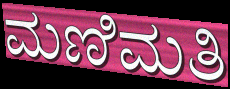
ಮಣಿಮತಿ